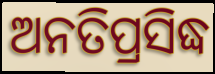
ଅନତିପ୍ରସିଦ୍ଧ